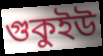
গুকুইউ